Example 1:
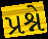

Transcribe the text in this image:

પ્રશ્ને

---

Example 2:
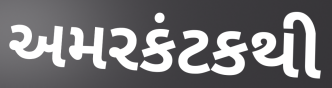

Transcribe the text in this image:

અમરકંટકથી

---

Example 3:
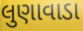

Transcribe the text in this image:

લુણાવાડા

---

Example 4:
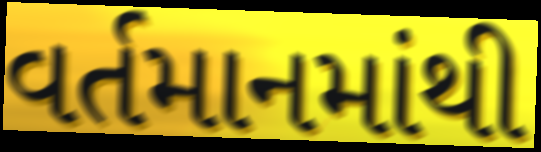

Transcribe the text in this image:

વર્તમાનમાંથી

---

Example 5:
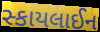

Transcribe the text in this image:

સ્કાયલાઈન